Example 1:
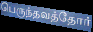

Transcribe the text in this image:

பெருந்தவத்தோர்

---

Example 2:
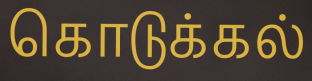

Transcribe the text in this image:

கொடுக்கல்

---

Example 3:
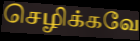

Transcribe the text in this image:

செழிக்கவே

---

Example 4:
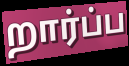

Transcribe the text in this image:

றார்ப்ப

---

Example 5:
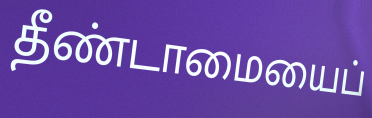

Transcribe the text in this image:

தீண்டாமையைப்